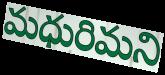
మధురిమని